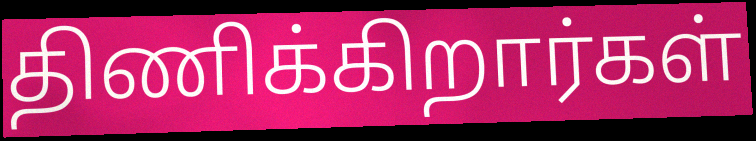
திணிக்கிறார்கள்